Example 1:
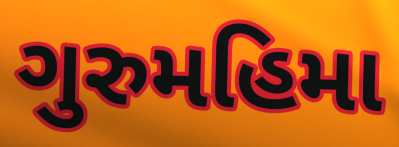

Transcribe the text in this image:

ગુરુમહિમા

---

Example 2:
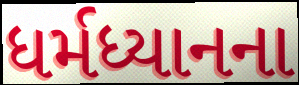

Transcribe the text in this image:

ધર્મધ્યાનના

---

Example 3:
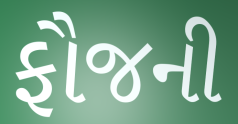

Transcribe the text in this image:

ફૌજની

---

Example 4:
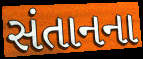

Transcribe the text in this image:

સંતાનના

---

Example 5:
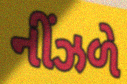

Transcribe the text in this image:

નીંઝળે